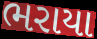
ભરાયા